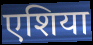
एशिया